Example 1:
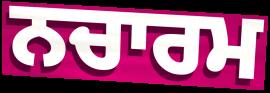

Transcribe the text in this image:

ਨਚਾਰਮ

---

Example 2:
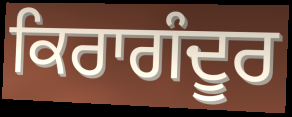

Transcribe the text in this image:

ਕਿਰਾਗੰਦੂਰ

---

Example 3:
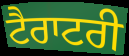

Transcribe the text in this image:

ਟੈਰਾਟਰੀ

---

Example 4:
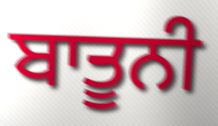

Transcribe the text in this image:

ਬਾਤੂਨੀ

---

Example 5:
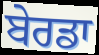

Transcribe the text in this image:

ਬੇਰਡਾ